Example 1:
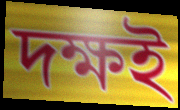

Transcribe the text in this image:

দক্ষই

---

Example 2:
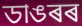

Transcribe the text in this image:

ডাঙৰৰ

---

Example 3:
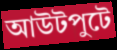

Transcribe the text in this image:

আউটপুটে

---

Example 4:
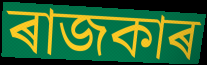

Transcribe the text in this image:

ৰাজকাৰ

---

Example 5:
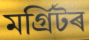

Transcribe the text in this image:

মৰ্গ্ৰিটৰ